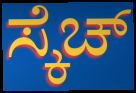
ಸ್ಕೆಚ್